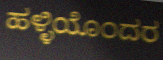
ಹಳ್ಳಿಯೊಂದರ